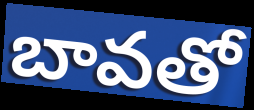
బావతో